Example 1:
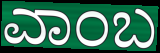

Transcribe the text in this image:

ಎಾಂಬ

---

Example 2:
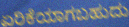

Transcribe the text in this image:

ಏರಿಕೆಯಾಗಬಹುದು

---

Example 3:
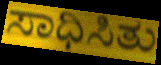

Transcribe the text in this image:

ಸಾಧಿಸಿತು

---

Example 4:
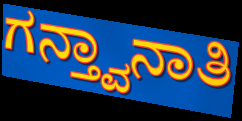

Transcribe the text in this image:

ಗನ್ತ್ವಾನಾತಿ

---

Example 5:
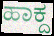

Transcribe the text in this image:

ಹಾಕ್ದ